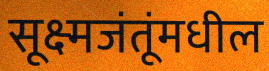
सूक्ष्मजंतूंमधील